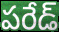
పరేడ్